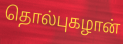
தொல்புகழான்